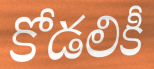
కోడలికీ